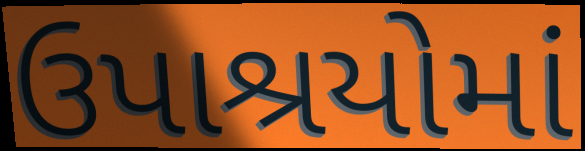
ઉપાશ્રયોમાં